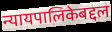
न्यायपालिकेबद्दल